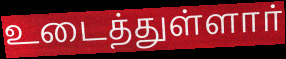
உடைத்துள்ளார்